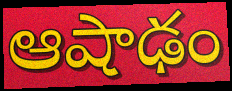
ఆషాఢం